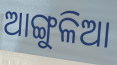
ଆଙ୍ଗୁଳିଆ